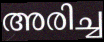
അരിച്ച